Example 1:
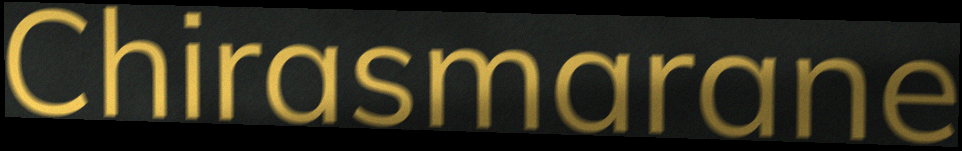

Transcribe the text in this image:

Chirasmarane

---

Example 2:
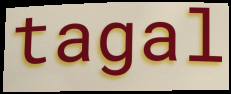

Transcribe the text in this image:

tagal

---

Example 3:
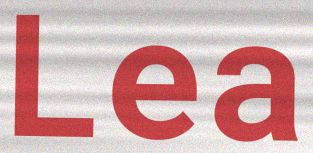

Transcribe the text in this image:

Lea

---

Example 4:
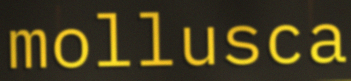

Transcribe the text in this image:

mollusca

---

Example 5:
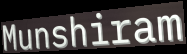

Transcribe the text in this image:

Munshiram